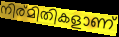
നിര്മിതികളാണ്